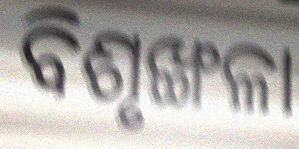
ବିଶୃଙ୍ଖଳା